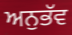
ਅਨੁਭੱਵ